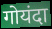
गोयंदा